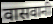
वासवानी